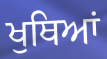
ਖੁਥਿਆਂ